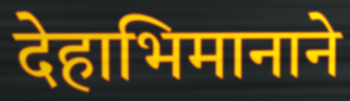
देहाभिमानाने